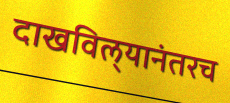
दाखविल्यानंतरच